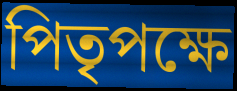
পিতৃপক্ষে